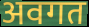
अवगत